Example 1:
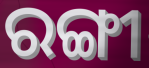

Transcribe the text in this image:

ରଙ୍ଗୀ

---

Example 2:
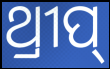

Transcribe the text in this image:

ଥ୍ରୀପ୍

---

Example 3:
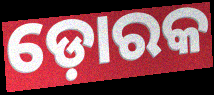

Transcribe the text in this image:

ଡ଼ୋରକ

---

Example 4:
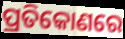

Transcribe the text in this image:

ପ୍ରତିକୋଣରେ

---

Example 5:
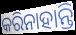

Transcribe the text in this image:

କରିନାହାନ୍ତି